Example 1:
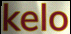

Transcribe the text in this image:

kelo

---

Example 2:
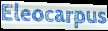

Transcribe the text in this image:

Eleocarpus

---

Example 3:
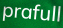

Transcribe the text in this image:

prafull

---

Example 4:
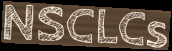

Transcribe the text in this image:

NSCLCs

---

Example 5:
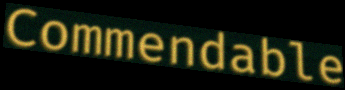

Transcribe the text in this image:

Commendable